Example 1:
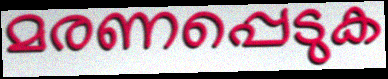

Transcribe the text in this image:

മരണപ്പെടുക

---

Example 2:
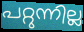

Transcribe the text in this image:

പറ്റുന്നില്ല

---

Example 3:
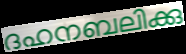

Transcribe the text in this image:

ദഹനബലിക്കു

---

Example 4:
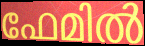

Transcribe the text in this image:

ഫേമിൽ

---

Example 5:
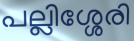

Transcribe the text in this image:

പല്ലിശ്ശേരി